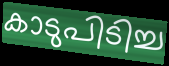
കാടുപിടിച്ച